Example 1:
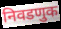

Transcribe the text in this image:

निवडणुक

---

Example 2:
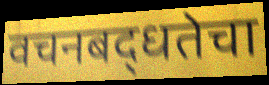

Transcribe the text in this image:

वचनबद्धतेचा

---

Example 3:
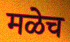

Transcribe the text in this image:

मळेच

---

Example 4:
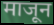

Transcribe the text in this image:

माजून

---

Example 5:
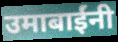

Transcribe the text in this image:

उमाबाईंनी